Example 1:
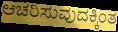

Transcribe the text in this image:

ಆಚರಿಸುವುದಕ್ಕಿಂತ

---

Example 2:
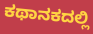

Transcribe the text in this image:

ಕಥಾನಕದಲ್ಲಿ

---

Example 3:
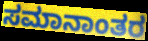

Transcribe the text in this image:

ಸಮಾನಾಂತರ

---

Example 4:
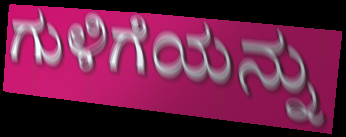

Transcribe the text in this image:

ಗುಳಿಗೆಯನ್ನು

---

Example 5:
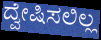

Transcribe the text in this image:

ದ್ವೇಷಿಸಲಿಲ್ಲ